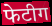
फेटीग